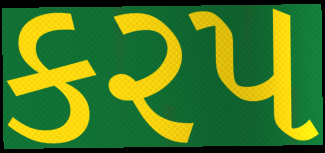
કરપ